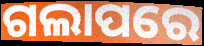
ଗଲାପରେ